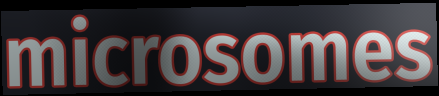
microsomes